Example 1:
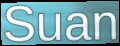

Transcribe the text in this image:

Suan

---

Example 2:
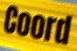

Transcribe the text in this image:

Coord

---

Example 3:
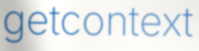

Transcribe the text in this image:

getcontext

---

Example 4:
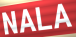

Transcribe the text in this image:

NALA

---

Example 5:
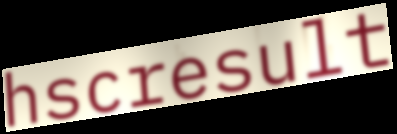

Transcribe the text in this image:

hscresult